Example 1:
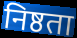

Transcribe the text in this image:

निष्ठता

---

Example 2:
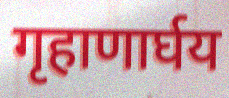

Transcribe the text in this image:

गृहाणार्घय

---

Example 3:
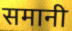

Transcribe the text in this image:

समानी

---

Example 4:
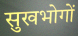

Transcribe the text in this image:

सुखभोगों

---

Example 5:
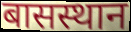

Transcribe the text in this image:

बासस्थान